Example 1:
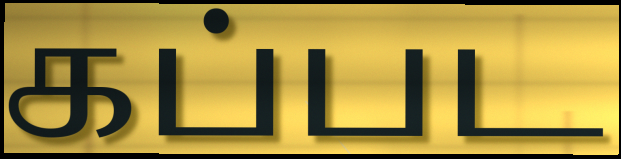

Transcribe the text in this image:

கப்பட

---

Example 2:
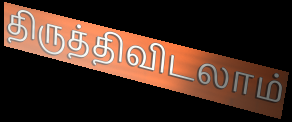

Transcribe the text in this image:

திருத்திவிடலாம்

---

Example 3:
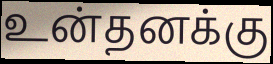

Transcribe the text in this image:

உன்தனக்கு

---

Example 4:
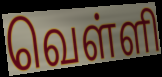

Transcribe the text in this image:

வெள்ளி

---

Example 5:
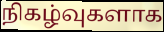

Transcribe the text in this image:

நிகழ்வுகளாக